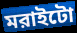
মরাইটো